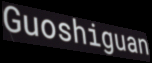
Guoshiguan